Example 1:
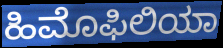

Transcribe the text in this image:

ಹಿಮೊಫಿಲಿಯಾ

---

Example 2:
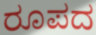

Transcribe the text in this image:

ರೂಪದ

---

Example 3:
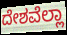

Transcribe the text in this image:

ದೇಶವೆಲ್ಲಾ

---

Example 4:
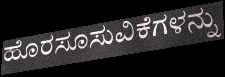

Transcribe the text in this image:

ಹೊರಸೂಸುವಿಕೆಗಳನ್ನು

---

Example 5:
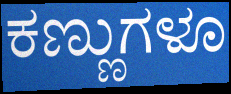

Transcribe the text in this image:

ಕಣ್ಣುಗಳೂ